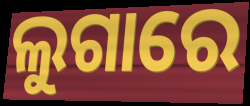
ଲୁଗାରେ